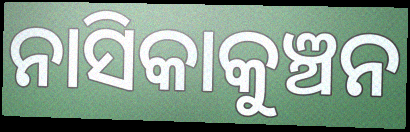
ନାସିକାକୁଞ୍ଚନ